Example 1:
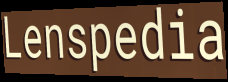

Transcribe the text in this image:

Lenspedia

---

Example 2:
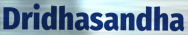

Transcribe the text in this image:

Dridhasandha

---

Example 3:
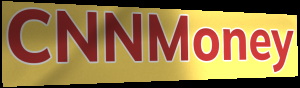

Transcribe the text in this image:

CNNMoney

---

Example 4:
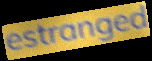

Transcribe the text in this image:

estranged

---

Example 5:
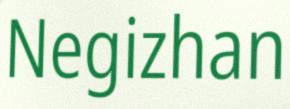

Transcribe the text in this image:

Negizhan